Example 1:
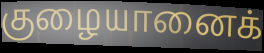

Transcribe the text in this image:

குழையானைக்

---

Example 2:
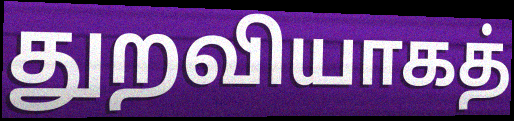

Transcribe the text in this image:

துறவியாகத்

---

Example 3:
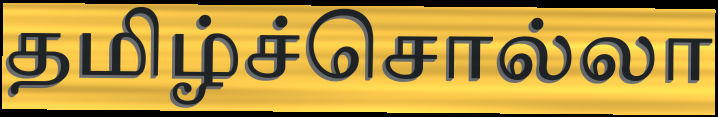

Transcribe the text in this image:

தமிழ்ச்சொல்லா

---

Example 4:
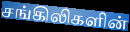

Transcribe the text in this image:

சங்கிலிகளின்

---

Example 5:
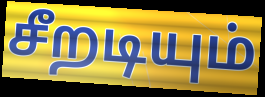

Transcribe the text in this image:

சீறடியும்